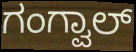
ಗಂಗ್ವಾಲ್